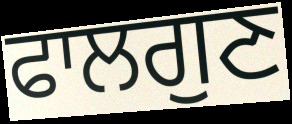
ਫਾਲਗੁਣ